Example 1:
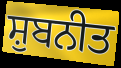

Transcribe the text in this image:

ਸ਼ੁਬਨੀਤ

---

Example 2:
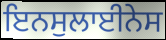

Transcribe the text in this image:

ਇਨਸੁਲਾਈਨੇਸ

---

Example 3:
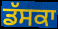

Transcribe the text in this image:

ਡੱਸਕਾ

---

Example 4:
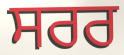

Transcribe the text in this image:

ਸਰਰ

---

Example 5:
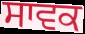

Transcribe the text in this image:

ਸਾਵਕ